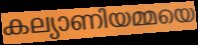
കല്യാണിയമ്മയെ